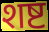
शष्ट